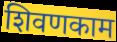
शिवणकाम